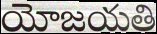
యోజయతి